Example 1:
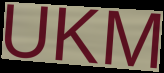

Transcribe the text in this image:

UKM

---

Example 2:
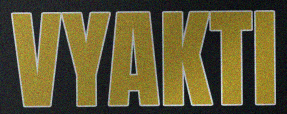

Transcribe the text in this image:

VYAKTI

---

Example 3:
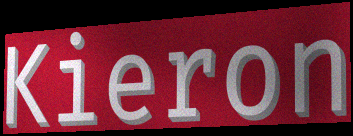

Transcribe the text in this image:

Kieron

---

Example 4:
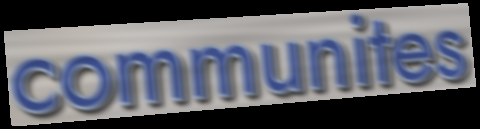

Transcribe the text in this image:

communites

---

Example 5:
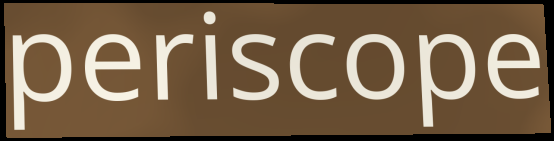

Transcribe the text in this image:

periscope